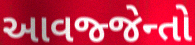
આવજ્જેન્તો